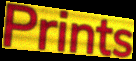
Prints